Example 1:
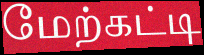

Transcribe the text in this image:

மேற்கட்டி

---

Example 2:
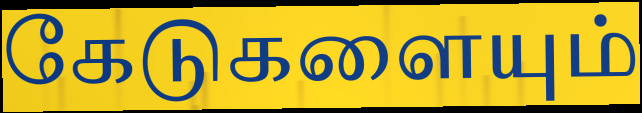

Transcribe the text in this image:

கேடுகளையும்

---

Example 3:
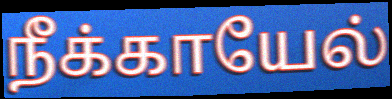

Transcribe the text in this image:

நீக்காயேல்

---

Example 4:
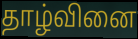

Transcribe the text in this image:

தாழ்வினை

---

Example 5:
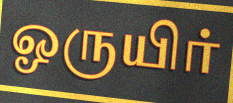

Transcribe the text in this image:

ஓருயிர்